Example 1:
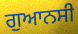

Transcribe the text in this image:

ਗੁਆਨਸੀ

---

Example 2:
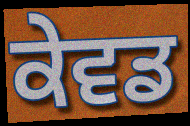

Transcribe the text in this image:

ਕੇਵਡ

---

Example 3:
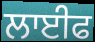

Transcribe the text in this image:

ਲਾਈਫ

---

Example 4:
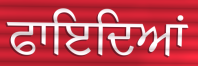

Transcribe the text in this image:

ਫਾਇਦਿਆਂ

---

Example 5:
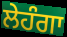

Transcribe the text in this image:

ਲੇਹੰਗਾ